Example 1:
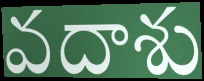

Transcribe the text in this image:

వదాశు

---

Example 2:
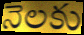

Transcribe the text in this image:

నెలకు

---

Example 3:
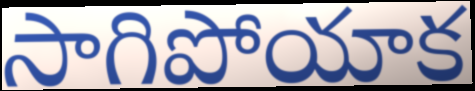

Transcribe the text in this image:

సాగిపోయాక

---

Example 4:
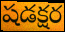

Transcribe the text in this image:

షడక్షర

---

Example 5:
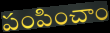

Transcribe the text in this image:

పంపించాం